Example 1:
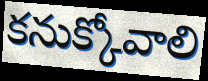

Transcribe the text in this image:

కనుక్కోవాలి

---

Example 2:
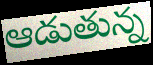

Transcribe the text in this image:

ఆడుతున్న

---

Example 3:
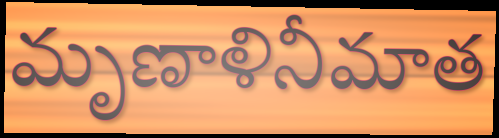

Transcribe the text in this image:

మృణాళినీమాత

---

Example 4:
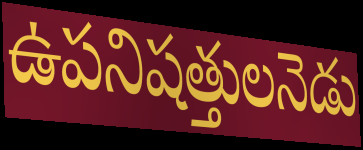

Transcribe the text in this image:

ఉపనిషత్తులనెడు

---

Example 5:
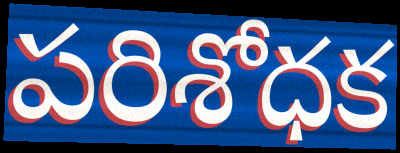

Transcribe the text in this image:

పరిశోధక